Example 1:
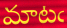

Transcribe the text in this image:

మాటఁ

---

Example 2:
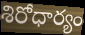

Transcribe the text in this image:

శిరోధార్యం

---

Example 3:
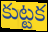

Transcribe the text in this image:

కుట్టక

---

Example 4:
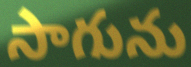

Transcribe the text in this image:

సాగును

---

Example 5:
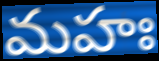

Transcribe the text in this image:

మహః